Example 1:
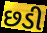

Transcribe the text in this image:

છડી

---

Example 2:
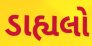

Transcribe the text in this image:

ડાહ્યલો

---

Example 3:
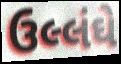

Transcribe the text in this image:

ઉલ્લંઘે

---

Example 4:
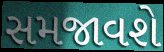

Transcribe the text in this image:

સમજાવશે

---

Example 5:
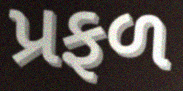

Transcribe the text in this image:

પ્રફળ